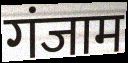
गंजाम